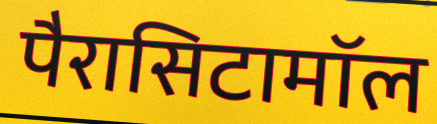
पैरासिटामॉल